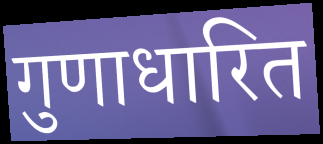
गुणाधारित